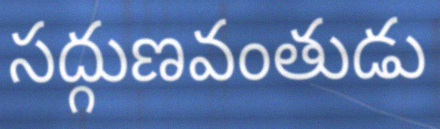
సద్గుణవంతుడు